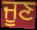
ਜੂਣ